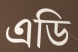
এডি